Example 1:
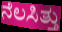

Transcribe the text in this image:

ನೆಲಸಿತ್ತು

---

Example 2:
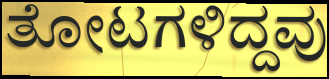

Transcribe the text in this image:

ತೋಟಗಳಿದ್ದವು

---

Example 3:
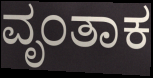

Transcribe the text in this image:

ವೃಂತಾಕ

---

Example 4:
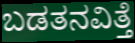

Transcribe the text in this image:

ಬಡತನವಿತ್ತೆ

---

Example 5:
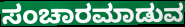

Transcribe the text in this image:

ಸಂಚಾರಮಾಡುವ